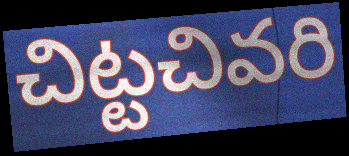
చిట్టచివరి